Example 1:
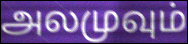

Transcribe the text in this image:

அலமுவும்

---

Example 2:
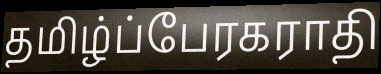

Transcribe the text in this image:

தமிழ்ப்பேரகராதி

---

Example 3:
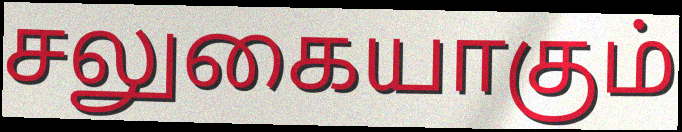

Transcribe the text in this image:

சலுகையாகும்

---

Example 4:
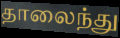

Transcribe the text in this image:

தாலைந்து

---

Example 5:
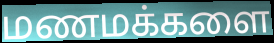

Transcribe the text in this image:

மணமக்களை